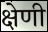
क्षेणी